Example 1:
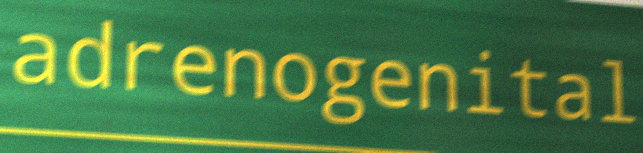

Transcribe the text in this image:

adrenogenital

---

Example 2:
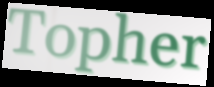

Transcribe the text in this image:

Topher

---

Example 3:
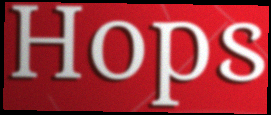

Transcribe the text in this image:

Hops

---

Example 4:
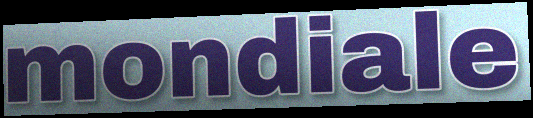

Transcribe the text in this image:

mondiale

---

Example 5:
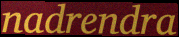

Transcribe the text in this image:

nadrendra